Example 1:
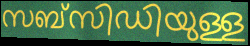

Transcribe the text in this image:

സബ്സിഡിയുള്ള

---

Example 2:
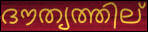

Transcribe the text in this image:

ദൗത്യത്തില്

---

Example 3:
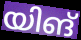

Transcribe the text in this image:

യിങ്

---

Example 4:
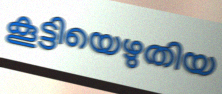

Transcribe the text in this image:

കൂട്ടിയെഴുതിയ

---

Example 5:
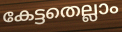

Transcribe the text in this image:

കേട്ടതെല്ലാം